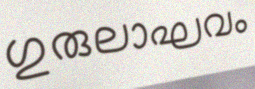
ഗുരുലാഘവം